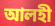
আলহী